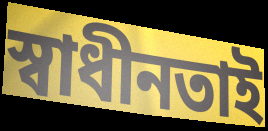
স্বাধীনতাই